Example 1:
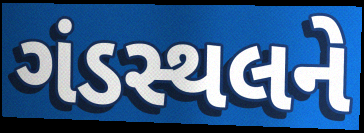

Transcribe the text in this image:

ગંડસ્થલને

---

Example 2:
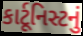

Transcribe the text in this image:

કાર્ટૂનિસ્ટનું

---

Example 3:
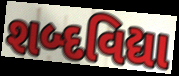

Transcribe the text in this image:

શબ્દવિદ્યા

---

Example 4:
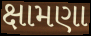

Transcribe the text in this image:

ક્ષામણા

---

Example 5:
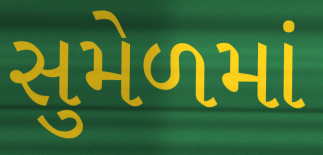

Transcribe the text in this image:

સુમેળમાં